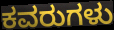
ಕವರುಗಳು